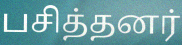
பசித்தனர்